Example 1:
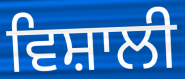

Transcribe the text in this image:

ਵਿਸ਼ਾਲੀ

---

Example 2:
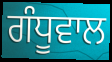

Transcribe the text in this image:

ਗੰਧੂਵਾਲ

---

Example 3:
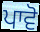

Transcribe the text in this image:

ਪਾਵੋ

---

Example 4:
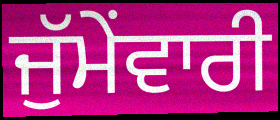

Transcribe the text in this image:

ਜੁੱਮੇਂਵਾਰੀ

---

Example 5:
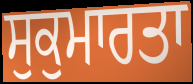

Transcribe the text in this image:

ਸੁਕੁਮਾਰਤਾ